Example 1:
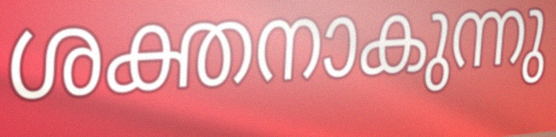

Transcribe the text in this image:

ശക്തനാകുന്നു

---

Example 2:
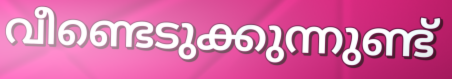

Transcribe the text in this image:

വീണ്ടെടുക്കുന്നുണ്ട്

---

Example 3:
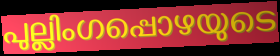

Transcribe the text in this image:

പുല്ലിംഗപ്പൊഴയുടെ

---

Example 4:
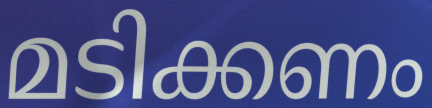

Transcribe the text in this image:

മടിക്കണം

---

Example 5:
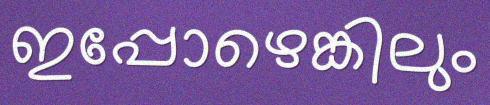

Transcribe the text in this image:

ഇപ്പോഴെങ്കിലും